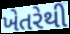
ખેતરેથી